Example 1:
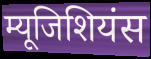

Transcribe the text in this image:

म्यूजिशियंस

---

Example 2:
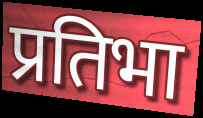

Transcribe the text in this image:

प्रतिभा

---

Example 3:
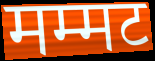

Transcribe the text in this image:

मम्मट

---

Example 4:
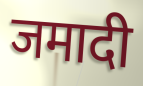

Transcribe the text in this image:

जमादी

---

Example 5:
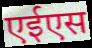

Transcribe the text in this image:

एईएस